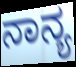
ನಾನ್ಯ